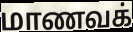
மாணவக்